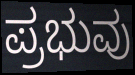
ಪ್ರಭುವು